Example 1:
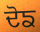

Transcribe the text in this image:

ਦੋਙ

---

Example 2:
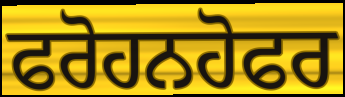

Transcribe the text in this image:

ਫਰੋਹਨਹੋਫਰ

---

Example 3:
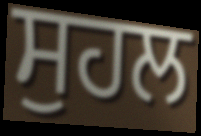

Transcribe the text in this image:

ਸੁਹਲ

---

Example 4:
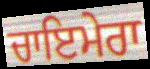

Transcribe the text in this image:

ਚਾਇਮੇਰਾ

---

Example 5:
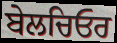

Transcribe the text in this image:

ਬੇਲਚਿਓਰ